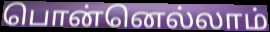
பொன்னெல்லாம்